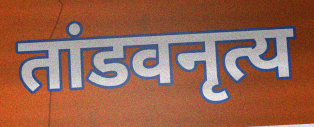
तांडवनृत्य